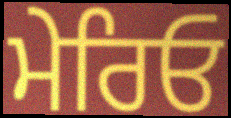
ਮੇਰਿਓ